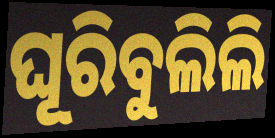
ଘୂରିବୁଲିଲି